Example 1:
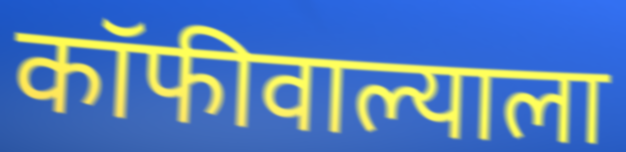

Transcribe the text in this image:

कॉफीवाल्याला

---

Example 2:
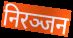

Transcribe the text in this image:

निरञ्जन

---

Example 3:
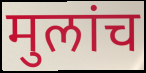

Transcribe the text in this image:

मुलांच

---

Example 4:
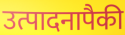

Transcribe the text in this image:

उत्पादनापैकी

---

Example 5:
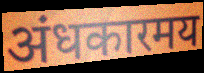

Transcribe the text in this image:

अंधकारमय